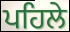
ਪਹਿਲੇ